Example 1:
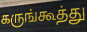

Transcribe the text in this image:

கருங்கூத்து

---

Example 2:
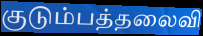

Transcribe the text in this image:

குடும்பத்தலைவி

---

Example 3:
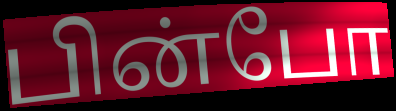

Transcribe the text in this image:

பின்போ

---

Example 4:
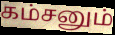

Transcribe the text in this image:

கம்சனும்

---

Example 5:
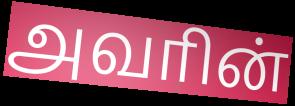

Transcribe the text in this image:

அவரின்